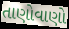
તાણોવાણો